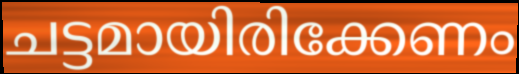
ചട്ടമായിരിക്കേണം